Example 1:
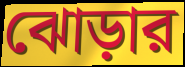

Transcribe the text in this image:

ঝোড়ার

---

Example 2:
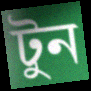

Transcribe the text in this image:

টুন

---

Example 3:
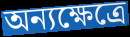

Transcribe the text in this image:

অন্যক্ষেত্রে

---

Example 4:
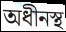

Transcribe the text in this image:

অধীনস্থ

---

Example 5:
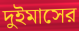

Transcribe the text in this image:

দুইমাসের